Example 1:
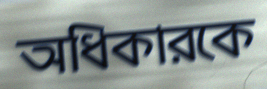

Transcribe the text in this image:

অধিকারকে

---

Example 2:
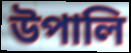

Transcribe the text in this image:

উপালি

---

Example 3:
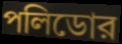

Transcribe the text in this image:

পলিডোর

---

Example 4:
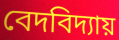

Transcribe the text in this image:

বেদবিদ্যায়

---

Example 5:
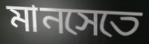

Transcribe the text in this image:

মানসেতে